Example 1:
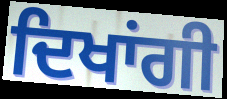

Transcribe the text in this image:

ਦਿਖਾਂਗੀ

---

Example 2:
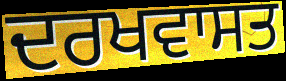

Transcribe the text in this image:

ਦਰਖਵਾਸਤ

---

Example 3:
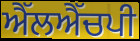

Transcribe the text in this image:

ਐੱਲਐੱਚਪੀ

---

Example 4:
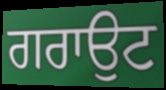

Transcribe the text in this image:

ਗਰਾਉਟ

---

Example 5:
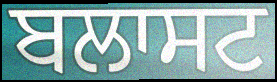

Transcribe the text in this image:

ਬਲਾਸਟ